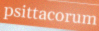
psittacorum